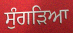
ਸੁੰਗੜਿਆ